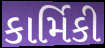
કાર્મિકી